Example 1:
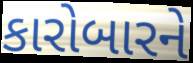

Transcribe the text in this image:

કારોબારને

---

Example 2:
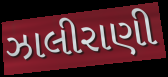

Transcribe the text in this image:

ઝાલીરાણી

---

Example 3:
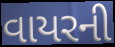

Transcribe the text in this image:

વાયરની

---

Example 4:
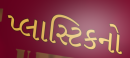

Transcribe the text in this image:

પ્લાસ્ટિકનો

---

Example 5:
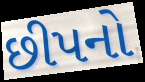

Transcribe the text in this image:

છીપનો